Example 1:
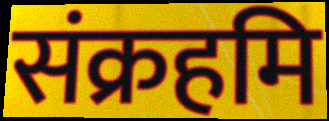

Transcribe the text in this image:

संक्रहमि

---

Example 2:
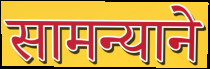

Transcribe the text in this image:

सामन्याने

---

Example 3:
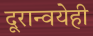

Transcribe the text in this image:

दूरान्वयेही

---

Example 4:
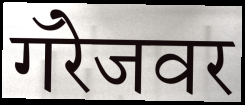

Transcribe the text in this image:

गॅरेजवर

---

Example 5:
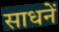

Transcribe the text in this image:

साधनें